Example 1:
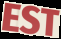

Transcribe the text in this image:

EST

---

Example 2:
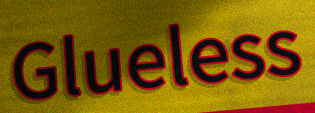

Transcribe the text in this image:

Glueless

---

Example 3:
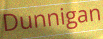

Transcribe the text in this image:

Dunnigan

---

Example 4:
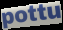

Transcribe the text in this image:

pottu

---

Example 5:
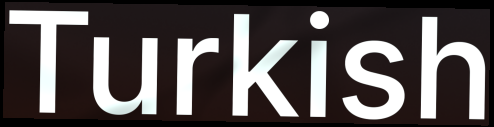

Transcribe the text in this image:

Turkish